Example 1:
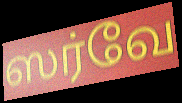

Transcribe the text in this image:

ஸர்வே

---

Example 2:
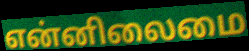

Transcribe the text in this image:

என்னிலைமை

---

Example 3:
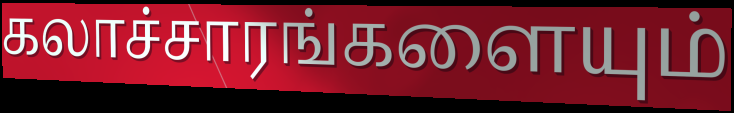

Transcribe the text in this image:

கலாச்சாரங்களையும்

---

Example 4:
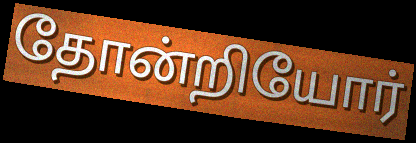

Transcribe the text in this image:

தோன்றியோர்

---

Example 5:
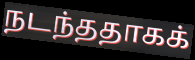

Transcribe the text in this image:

நடந்ததாகக்